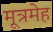
मूत्रमेह